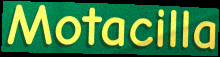
Motacilla